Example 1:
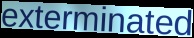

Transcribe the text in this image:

exterminated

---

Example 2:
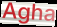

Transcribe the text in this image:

Agha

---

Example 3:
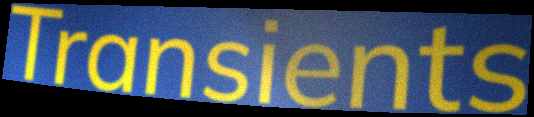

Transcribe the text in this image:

Transients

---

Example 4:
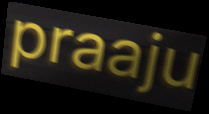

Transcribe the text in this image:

praaju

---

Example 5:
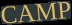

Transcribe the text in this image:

CAMP